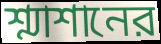
শ্মাশানের